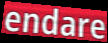
endare